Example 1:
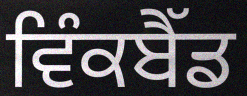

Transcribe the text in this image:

ਵਿੰਕਬੈੱਡ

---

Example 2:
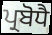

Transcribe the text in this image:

ਪ੍ਰਬੋਧੈ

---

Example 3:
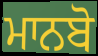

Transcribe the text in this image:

ਮਾਨਬੋ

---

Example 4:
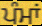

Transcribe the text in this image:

ਪੰਮਾਂ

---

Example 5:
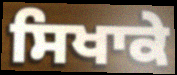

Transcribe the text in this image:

ਸਿਖਾਕੇ